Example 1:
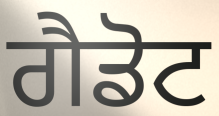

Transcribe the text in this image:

ਗੈਡੋਟ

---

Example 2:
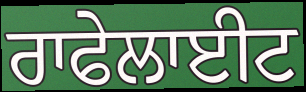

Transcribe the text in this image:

ਰਾਫੇਲਾਈਟ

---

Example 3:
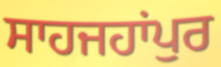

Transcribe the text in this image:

ਸਾਹਜਹਾਂਪੁਰ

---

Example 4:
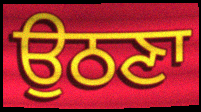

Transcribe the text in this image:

ਉਠਣਾ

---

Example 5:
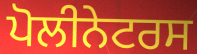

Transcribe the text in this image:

ਪੋਲੀਨੇਟਰਸ